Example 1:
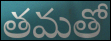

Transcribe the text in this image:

తమతో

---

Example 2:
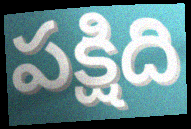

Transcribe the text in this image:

పక్షిది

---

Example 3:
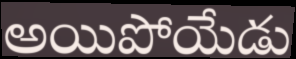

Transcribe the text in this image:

అయిపోయేడు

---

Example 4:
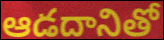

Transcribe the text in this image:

ఆడదానితో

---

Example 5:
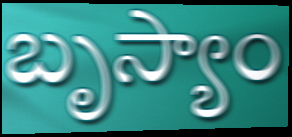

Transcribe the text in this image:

బృస్యాం